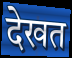
देखत